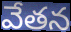
వేతన